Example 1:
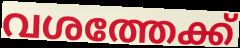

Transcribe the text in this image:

വശത്തേക്ക്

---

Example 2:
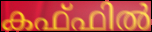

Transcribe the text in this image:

കഫ്ഫിൽ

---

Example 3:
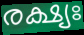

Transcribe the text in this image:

രക്ഷ്യഃ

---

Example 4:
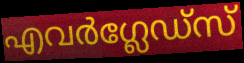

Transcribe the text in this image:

എവർഗ്ലേഡ്സ്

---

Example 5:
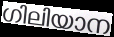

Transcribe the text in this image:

ഗിലിയാന